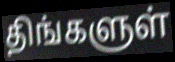
திங்களுள்